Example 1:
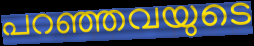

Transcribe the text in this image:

പറഞ്ഞവയുടെ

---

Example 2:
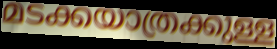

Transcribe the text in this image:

മടക്കയാത്രക്കുള്ള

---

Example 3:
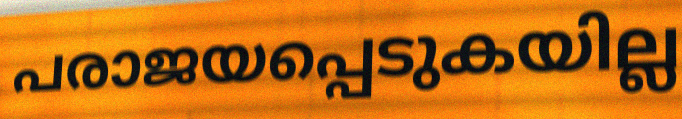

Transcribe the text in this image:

പരാജയപ്പെടുകയില്ല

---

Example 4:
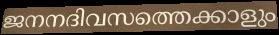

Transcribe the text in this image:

ജനനദിവസത്തെക്കാളും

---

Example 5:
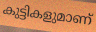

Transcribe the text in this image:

കുട്ടികളുമാണ്